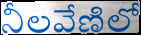
నీలవేణిలో